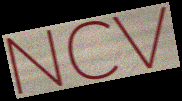
NCV